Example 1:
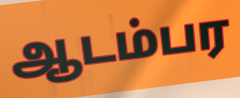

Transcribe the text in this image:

ஆடம்பர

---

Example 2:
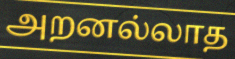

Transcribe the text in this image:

அறனல்லாத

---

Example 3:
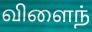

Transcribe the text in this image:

விளைந்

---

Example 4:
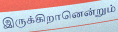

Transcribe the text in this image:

இருக்கிறானென்றும்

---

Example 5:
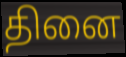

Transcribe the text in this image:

தினை